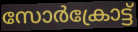
സോർക്രോട്ട്